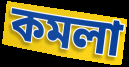
কমলা